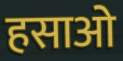
हसाओ